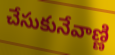
చేసుకునేవాణ్ణి